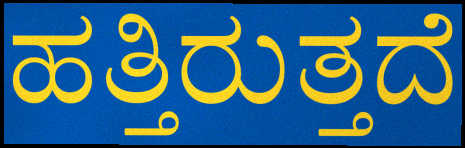
ಹತ್ತಿರುತ್ತದೆ